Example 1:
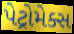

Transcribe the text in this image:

પેટ્રોમેક્સ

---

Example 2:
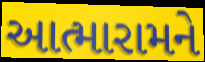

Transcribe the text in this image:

આત્મારામને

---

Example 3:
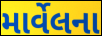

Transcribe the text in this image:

માર્વેલના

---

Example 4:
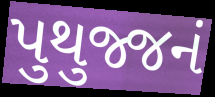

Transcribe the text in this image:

પુથુજ્જનં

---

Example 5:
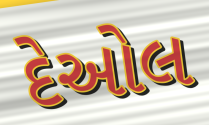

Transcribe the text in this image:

દેઓલ